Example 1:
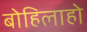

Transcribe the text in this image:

बोहिलाहो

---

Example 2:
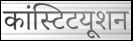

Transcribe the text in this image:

कांस्टिटयूशन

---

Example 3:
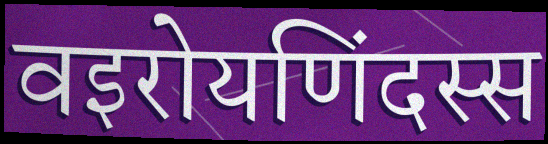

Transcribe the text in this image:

वइरोयणिंदस्स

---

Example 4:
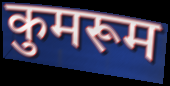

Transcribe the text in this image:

कुमरूम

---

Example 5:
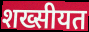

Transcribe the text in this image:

शख्सीयत